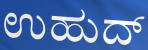
ಉಹುದ್